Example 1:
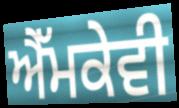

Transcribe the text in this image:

ਐੱਮਕੇਵੀ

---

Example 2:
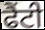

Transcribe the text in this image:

ਫੈਂਟੀ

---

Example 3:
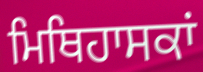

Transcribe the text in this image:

ਮਿਥਿਹਾਸਕਾਂ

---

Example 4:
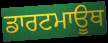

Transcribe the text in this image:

ਡਾਰਟਮਾਊਥ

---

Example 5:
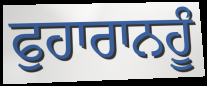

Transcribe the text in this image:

ਫੁਹਾਰਾਨਹੂੰ